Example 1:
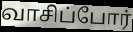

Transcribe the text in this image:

வாசிப்போர்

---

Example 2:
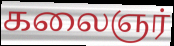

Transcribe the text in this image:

கலைஞர்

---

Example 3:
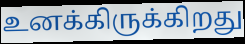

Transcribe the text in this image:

உனக்கிருக்கிறது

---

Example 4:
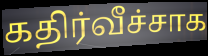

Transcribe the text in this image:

கதிர்வீச்சாக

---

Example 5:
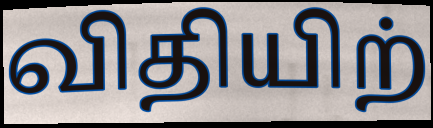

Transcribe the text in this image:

விதியிற்